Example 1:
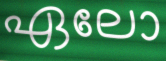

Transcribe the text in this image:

ഏലോ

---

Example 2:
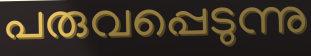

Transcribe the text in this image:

പരുവപ്പെടുന്നു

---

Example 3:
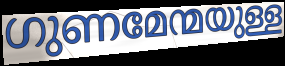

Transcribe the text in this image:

ഗുണമേന്മയുള്ള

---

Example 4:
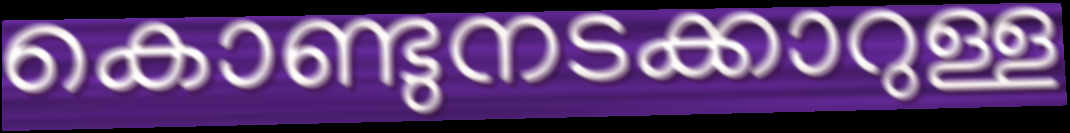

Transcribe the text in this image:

കൊണ്ടുനടക്കാറുള്ള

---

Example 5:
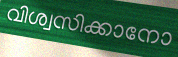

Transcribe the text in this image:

വിശ്വസിക്കാനോ